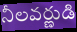
నీలవర్ణుడి